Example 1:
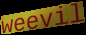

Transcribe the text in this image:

weevil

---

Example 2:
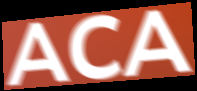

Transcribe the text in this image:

ACA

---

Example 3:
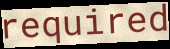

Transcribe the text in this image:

required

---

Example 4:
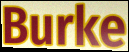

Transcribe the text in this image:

Burke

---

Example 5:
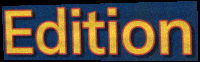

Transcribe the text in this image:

Edition